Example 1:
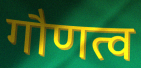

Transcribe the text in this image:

गौणत्व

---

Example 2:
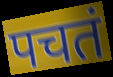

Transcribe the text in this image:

पचतं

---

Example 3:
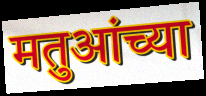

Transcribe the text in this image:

मतुआंच्या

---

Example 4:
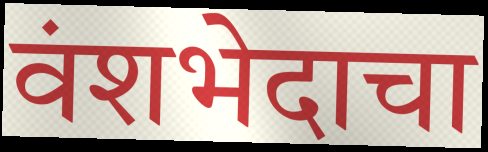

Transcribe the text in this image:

वंशभेदाचा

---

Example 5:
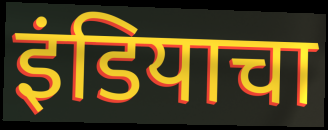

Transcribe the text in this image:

इंडियाचा